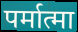
पर्मात्मा